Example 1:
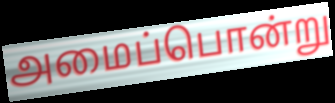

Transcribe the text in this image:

அமைப்பொன்று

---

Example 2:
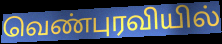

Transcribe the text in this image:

வெண்புரவியில்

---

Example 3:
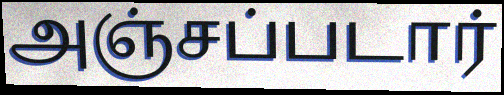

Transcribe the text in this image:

அஞ்சப்படார்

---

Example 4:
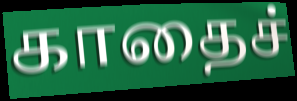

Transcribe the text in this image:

காதைச்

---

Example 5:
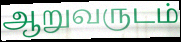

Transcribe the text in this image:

ஆறுவருடம்